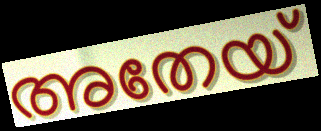
അതേയ്